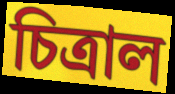
চিত্রাল